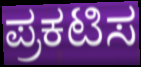
ಪ್ರಕಟಿಸ